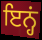
ਇਨ੍ਹਂ